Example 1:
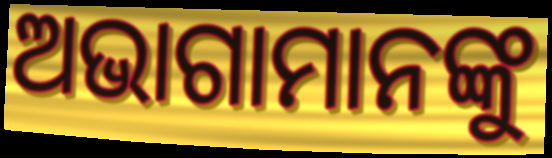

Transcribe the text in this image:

ଅଭାଗାମାନଙ୍କୁ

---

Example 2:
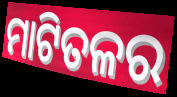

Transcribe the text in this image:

ମାଟିତଳର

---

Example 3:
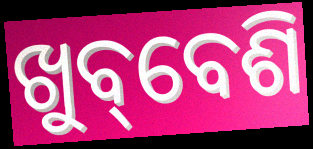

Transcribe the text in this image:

ଖୁବ୍‌ବେଶି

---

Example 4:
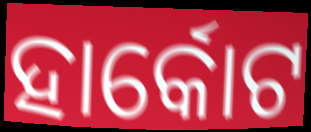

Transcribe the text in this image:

ହାର୍କୋଟ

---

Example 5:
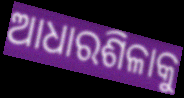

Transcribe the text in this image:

ଆଧାରଶିଳାକୁ